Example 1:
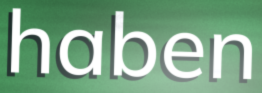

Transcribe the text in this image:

haben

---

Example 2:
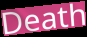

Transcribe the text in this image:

Death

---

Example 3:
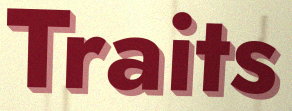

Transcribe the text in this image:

Traits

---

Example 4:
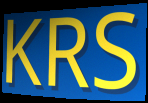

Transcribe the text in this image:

KRS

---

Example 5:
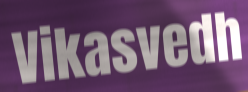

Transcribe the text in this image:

Vikasvedh